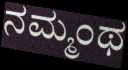
ನಮ್ಮಂಥ